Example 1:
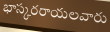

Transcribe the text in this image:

భాస్కరరాయలవారు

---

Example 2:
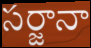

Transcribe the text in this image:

సర్జానా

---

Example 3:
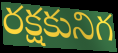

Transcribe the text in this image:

రక్షకునిగ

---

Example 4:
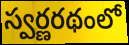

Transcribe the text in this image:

స్వర్ణరథంలో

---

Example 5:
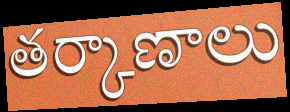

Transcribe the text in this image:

తర్కాణాలు